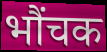
भौंचक